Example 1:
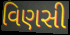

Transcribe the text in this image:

વિણસી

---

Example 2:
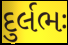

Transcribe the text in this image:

દુર્લભઃ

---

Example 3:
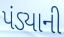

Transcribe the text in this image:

પંડ્યાની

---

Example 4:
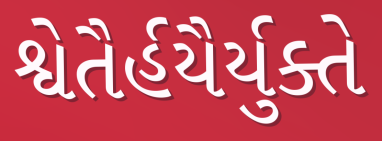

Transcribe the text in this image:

શ્વેતૈર્હયૈર્યુક્તે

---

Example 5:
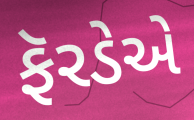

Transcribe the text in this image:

ફૅરડેએ